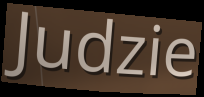
Judzie